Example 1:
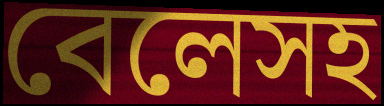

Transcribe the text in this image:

বেলেসহ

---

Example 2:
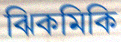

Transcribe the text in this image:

ঝিকমিকি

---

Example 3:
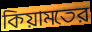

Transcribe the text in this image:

কিয়ামতের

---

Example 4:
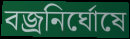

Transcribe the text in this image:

বজ্রনির্ঘোষে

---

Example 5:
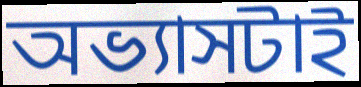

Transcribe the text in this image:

অভ্যাসটাই